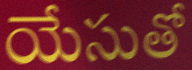
యేసుతో